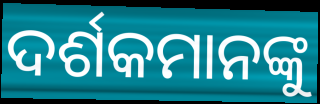
ଦର୍ଶକମାନଙ୍କୁ